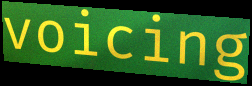
voicing